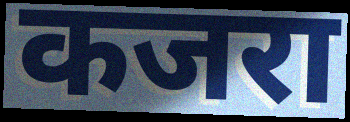
कजरा